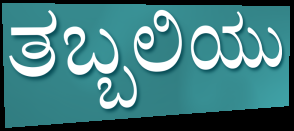
ತಬ್ಬಲಿಯು